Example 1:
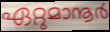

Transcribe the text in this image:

ഏറ്റുമാനൂർ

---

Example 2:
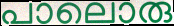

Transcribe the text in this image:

പാലൊരു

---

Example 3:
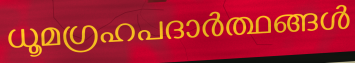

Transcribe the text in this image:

ധൂമഗ്രഹപദാർത്ഥങ്ങൾ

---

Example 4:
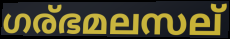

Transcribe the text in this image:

ഗര്ഭമലസല്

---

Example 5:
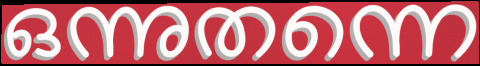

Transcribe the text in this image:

ഒന്നുതന്നെ